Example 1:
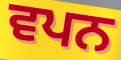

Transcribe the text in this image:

ਵਪਨ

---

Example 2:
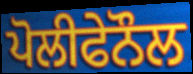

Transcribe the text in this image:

ਪੋਲੀਫੇਨੌਲ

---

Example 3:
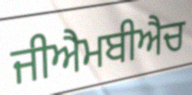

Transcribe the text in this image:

ਜੀਐਮਬੀਐਚ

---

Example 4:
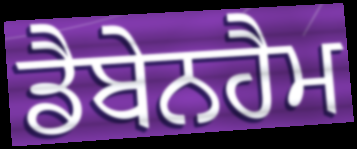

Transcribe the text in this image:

ਡੈਬੇਨਹੈਮ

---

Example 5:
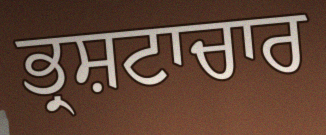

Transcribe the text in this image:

ਭ੍ਰਸ਼ਟਾਚਾਰ